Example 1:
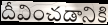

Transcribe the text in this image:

దీవించడానికి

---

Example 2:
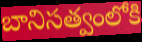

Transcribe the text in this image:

బానిసత్వంలోకి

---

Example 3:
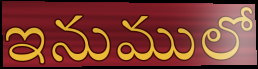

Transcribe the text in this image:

ఇనుములో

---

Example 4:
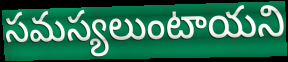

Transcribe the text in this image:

సమస్యలుంటాయని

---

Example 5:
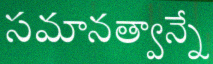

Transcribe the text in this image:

సమానత్వాన్నే